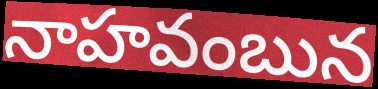
నాహవంబున